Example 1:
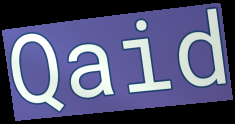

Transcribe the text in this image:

Qaid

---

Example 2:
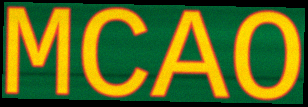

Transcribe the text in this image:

MCAO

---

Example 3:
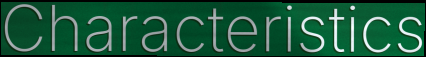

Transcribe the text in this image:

Characteristics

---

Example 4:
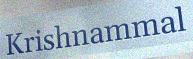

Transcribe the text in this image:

Krishnammal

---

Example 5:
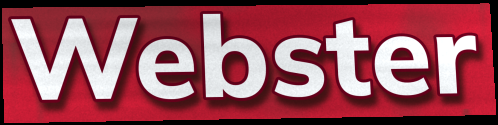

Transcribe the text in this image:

Webster